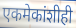
एकमेकांशीही